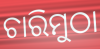
ଚାରିମୁଠା